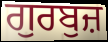
ਗੁਰਬੁਜ਼